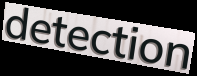
detection